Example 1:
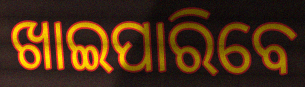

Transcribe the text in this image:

ଖାଇପାରିବେ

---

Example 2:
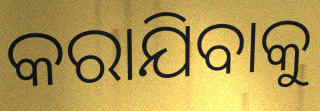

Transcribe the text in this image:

କରାଯିବାକୁ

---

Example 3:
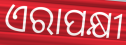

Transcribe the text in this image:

ଏରାପକ୍ଷୀ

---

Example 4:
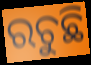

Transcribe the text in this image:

ରଚୁଛି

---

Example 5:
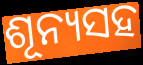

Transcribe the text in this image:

ଶୂନ୍ୟସହ